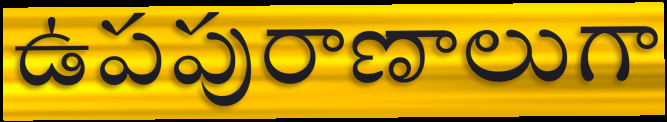
ఉపపురాణాలుగా